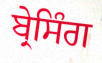
ਬ੍ਰੇਸਿੰਗ